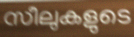
സീലുകളുടെ